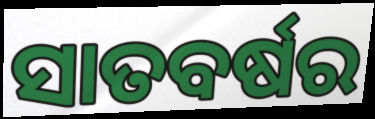
ସାତବର୍ଷର